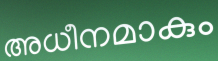
അധീനമാകും